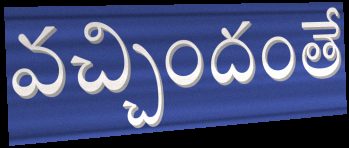
వచ్చిందంతే